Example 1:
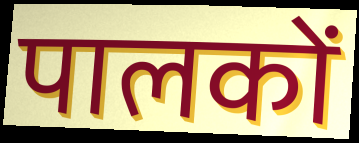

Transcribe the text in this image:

पालकों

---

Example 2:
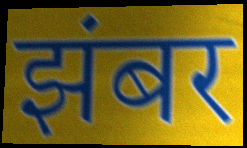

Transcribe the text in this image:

झंबर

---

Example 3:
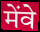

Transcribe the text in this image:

मेंवे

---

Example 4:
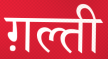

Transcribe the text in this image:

ग़ल्ती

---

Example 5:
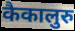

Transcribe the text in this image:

कैकालुरु